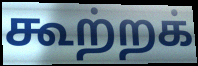
கூற்றக்